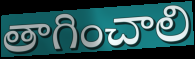
తాగించాలి